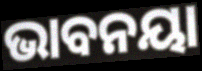
ଭାବନୟା